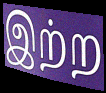
இற்ற